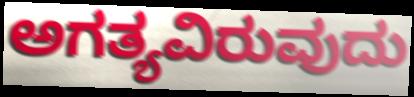
ಅಗತ್ಯವಿರುವುದು